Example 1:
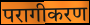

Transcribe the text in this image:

परागीकरण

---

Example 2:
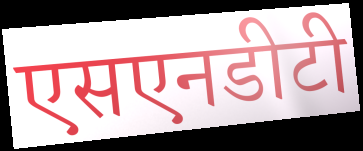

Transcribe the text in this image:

एसएनडीटी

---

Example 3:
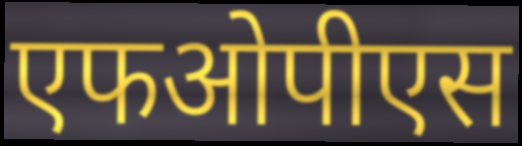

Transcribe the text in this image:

एफओपीएस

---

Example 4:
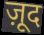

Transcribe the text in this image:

ज़ूद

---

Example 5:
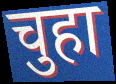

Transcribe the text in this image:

चुहा